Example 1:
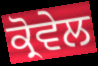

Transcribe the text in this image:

ਕ੍ਰੋਵੇਲ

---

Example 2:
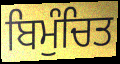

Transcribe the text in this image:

ਬਿਮੁੰਚਿਤ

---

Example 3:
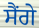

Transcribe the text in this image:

ਸੈਂਗੇ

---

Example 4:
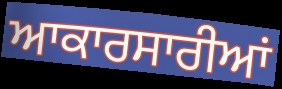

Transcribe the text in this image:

ਆਕਾਰਸਾਰੀਆਂ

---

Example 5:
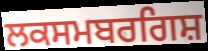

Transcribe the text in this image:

ਲਕਸਮਬਰਗਿਸ਼